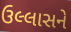
ઉલ્લાસને